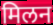
मिलन